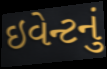
ઇવેન્ટનું